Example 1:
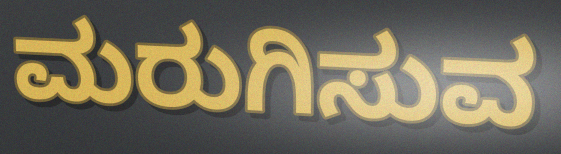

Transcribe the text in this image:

ಮರುಗಿಸುವ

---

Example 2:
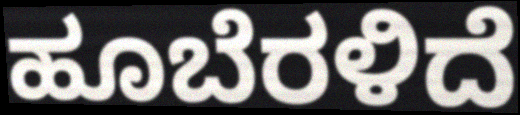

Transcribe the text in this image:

ಹೂಬೆರಳಿದೆ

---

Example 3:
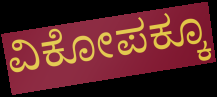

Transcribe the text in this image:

ವಿಕೋಪಕ್ಕೂ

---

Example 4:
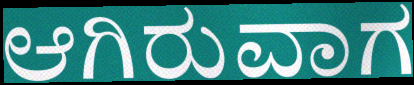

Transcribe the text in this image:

ಆಗಿರುವಾಗ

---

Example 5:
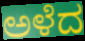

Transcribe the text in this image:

ಅಳೆದ